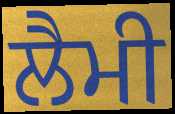
ਲੈਮੀ